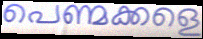
പെണ്മക്കളെ